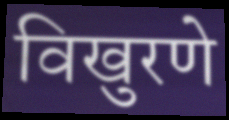
विखुरणे